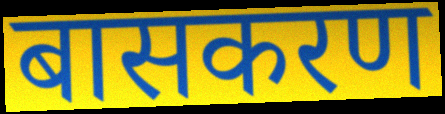
बासकरण